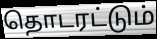
தொடரட்டும்